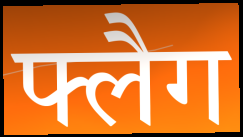
फ्लैग